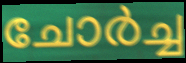
ചോർച്ച